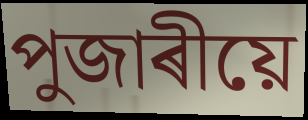
পুজাৰীয়ে